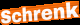
Schrenk